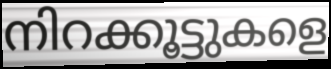
നിറക്കൂട്ടുകളെ